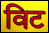
विट